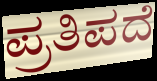
ಪ್ರತಿಪದೆ